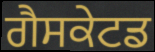
ਗੈਸਕੇਟਡ